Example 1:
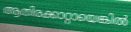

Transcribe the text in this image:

ആതിരക്കാറ്റായെങ്കിൽ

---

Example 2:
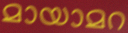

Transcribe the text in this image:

മായാമറ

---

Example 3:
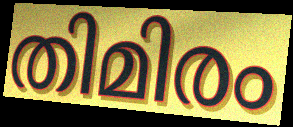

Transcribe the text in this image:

തിമിരം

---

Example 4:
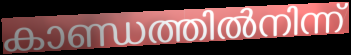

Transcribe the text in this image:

കാണ്ഡത്തിൽനിന്ന്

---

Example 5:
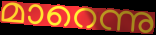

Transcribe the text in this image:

മാറെന്നു